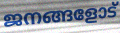
ജനങ്ങളോട്